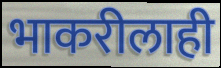
भाकरीलाही